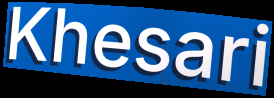
Khesari